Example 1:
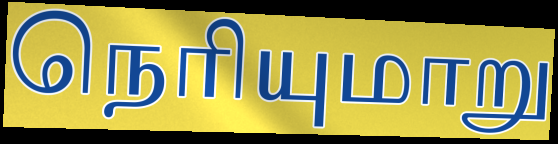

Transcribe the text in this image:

நெரியுமாறு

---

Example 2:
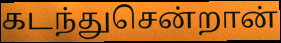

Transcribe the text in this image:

கடந்துசென்றான்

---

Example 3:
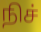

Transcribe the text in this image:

நிச்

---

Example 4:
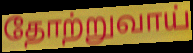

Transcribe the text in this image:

தோற்றுவாய்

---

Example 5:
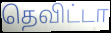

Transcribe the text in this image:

தெவிட்டா